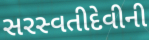
સરસ્વતીદેવીની